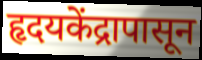
हृदयकेंद्रापासून